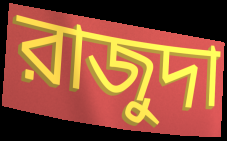
রাজুদা